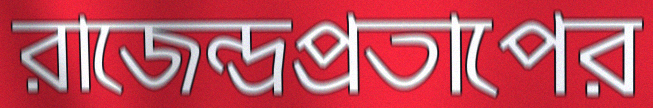
রাজেন্দ্রপ্রতাপের